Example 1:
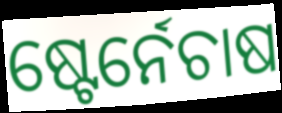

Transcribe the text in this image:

ଷ୍ଟେର୍ନେଚାଷ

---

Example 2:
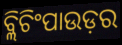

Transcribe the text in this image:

ବ୍ଲିଚିଂପାଉଡ଼ର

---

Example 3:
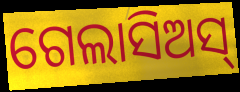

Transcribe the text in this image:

ଗେଲାସିଅସ୍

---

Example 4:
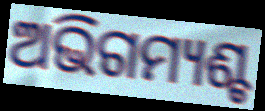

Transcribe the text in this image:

ଅଭିଗମ୍ୟଶ୍ଚ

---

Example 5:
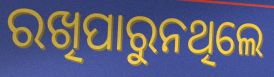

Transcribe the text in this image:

ରଖିପାରୁନଥିଲେ